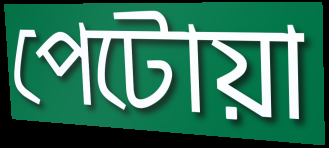
পেটোয়া